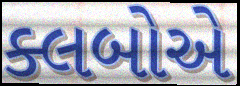
ક્લબોએ